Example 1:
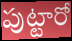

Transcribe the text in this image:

పుట్టారో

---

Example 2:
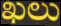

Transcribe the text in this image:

ఖలు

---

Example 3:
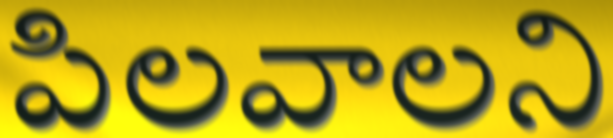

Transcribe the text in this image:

పిలవాలని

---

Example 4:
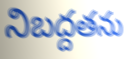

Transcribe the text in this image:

నిబద్దతను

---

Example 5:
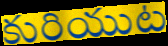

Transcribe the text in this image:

కురియుట